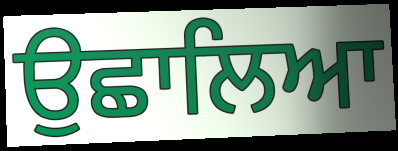
ਉਛਾਲਿਆ